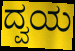
ದ್ವಯ